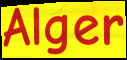
Alger